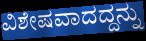
ವಿಶೇಷವಾದದ್ದನ್ನು